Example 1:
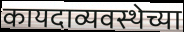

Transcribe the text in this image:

कायदाव्यवस्थेच्या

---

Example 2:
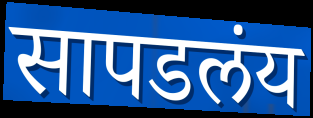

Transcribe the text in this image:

सापडलंय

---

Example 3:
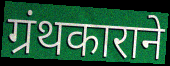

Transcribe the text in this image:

ग्रंथकाराने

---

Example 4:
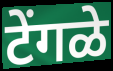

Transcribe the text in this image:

टेंगळे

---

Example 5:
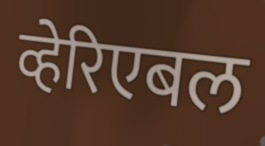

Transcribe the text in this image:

व्हेरिएबल